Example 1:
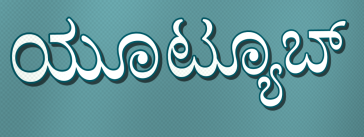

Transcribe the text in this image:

ಯೂಟ್ಯೂಬ್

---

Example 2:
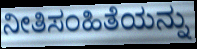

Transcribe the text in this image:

ನೀತಿಸಂಹಿತೆಯನ್ನು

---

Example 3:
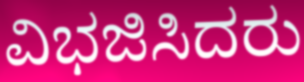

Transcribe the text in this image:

ವಿಭಜಿಸಿದರು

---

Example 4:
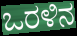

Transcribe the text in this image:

ಒರಳಿನ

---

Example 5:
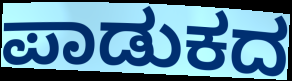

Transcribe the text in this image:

ಪಾಡುಕದ